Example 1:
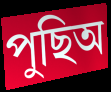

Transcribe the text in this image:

পুছিঅ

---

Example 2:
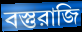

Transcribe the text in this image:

বস্তুরাজি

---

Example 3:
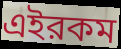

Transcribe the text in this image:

এইরকম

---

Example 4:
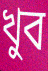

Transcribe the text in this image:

খুব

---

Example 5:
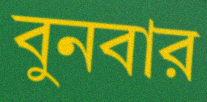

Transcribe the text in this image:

বুনবার